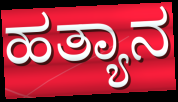
ಹತ್ಯಾನ